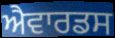
ਐਵਾਰਡਸ